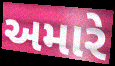
અમારે